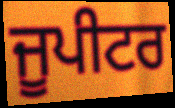
ਜੂਪੀਟਰ